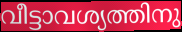
വീട്ടാവശ്യത്തിനു